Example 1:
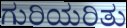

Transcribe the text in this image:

ಗುರಿಯರಿತು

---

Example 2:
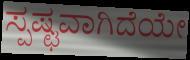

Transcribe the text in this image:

ಸ್ಪಷ್ಟವಾಗಿದೆಯೇ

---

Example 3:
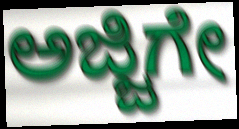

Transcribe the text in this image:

ಅಜ್ಜಿಗೇ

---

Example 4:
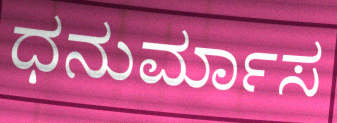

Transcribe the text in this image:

ಧನುರ್ಮಾಸ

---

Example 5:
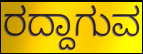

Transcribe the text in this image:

ರದ್ದಾಗುವ